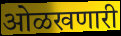
ओळखणारी